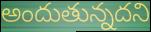
అందుతున్నదని